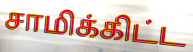
சாமிக்கிட்ட